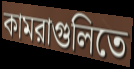
কামরাগুলিতে